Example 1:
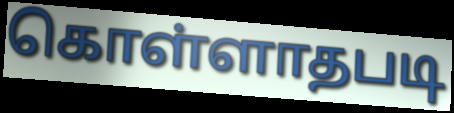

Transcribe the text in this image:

கொள்ளாதபடி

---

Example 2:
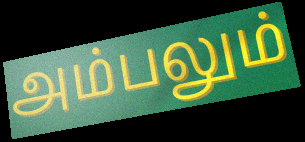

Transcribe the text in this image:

அம்பலும்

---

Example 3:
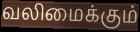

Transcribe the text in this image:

வலிமைக்கும்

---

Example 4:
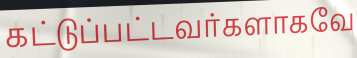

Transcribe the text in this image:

கட்டுப்பட்டவர்களாகவே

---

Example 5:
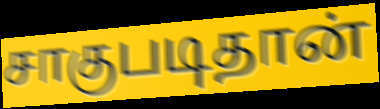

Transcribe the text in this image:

சாகுபடிதான்